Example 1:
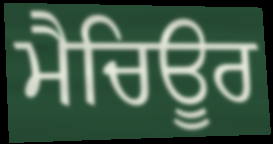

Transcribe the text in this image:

ਮੈਚਿਊਰ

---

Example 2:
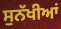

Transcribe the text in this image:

ਸੁਨੱਖੀਆਂ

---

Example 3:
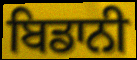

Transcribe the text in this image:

ਬਿਡਾਨੀ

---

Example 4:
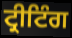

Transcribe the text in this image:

ਟ੍ਰੀਟਿੰਗ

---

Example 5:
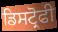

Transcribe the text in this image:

ਡਿਸਟ੍ਰੋਫੀ